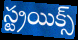
స్ట్రయిక్స్